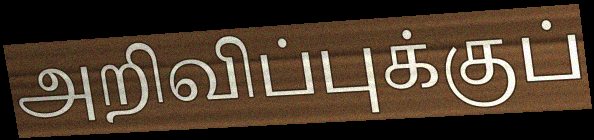
அறிவிப்புக்குப்